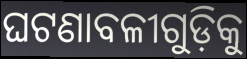
ଘଟଣାବଳୀଗୁଡ଼ିକୁ